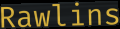
Rawlins